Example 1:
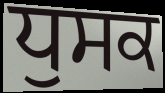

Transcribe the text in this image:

ਧੁਸਕ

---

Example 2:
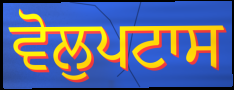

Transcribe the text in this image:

ਵੋਲੁਪਟਾਸ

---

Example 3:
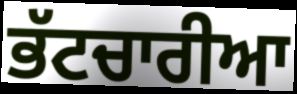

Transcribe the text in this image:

ਭੱਟਚਾਰੀਆ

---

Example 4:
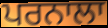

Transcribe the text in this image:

ਪਰਨਾਲਾ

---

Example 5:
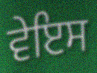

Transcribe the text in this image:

ਵੇਇਸ